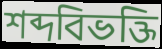
শব্দবিভক্তি